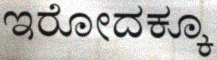
ಇರೋದಕ್ಕೂ